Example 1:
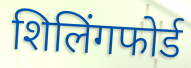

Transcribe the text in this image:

शिलिंगफोर्ड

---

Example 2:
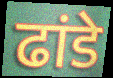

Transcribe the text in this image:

ढांडे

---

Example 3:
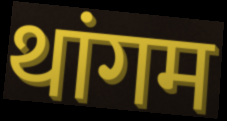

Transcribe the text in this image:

थांगम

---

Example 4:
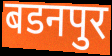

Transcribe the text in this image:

बडनपुर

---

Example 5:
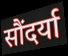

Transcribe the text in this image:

सौंदर्या